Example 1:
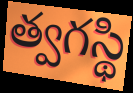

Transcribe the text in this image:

త్వగస్థి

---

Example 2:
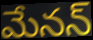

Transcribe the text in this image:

మేనన్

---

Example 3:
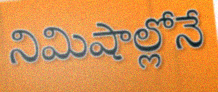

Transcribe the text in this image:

నిమిషాల్లోనే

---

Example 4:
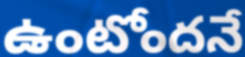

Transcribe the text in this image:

ఉంటోందనే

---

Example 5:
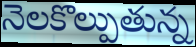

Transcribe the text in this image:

నెలకొల్పుతున్న